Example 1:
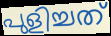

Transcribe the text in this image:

പുളിച്ചത്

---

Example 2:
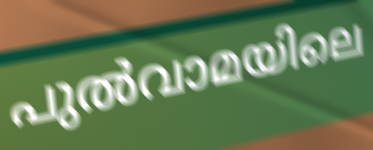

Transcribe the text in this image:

പുൽവാമയിലെ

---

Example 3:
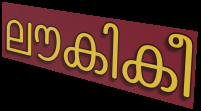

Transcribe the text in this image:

ലൗകികീ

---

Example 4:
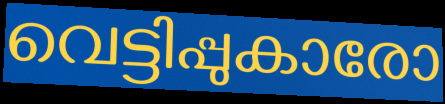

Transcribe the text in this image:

വെട്ടിപ്പുകാരോ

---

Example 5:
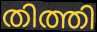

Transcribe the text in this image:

തിത്തി